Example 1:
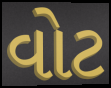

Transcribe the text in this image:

વોટ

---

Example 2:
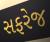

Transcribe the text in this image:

સફરેજ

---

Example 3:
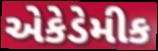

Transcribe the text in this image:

એકેડેમીક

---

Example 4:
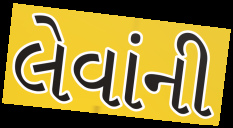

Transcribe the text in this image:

લેવાંની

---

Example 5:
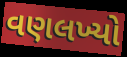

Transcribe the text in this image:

વણલખ્યો